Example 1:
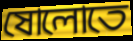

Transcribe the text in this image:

ষোলোতে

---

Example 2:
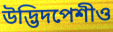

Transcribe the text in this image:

উদ্ভিদপেশীও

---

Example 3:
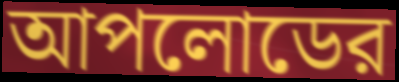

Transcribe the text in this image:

আপলোডের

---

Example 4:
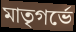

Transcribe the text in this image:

মাতৃগর্ভে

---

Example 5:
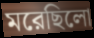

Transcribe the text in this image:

মরেছিলো